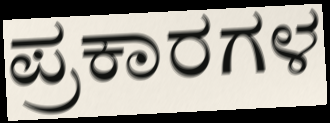
ಪ್ರಕಾರಗಳ